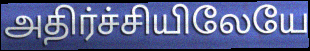
அதிர்ச்சியிலேயே